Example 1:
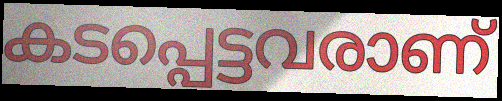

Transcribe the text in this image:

കടപ്പെട്ടവരാണ്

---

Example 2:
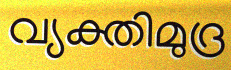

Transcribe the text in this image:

വ്യക്തിമുദ്ര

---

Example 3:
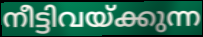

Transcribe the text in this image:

നീട്ടിവയ്ക്കുന്ന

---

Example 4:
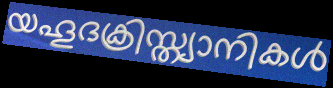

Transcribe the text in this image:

യഹൂദക്രിസ്ത്യാനികൾ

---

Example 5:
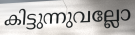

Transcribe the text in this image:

കിട്ടുന്നുവല്ലോ